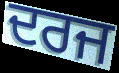
ਦਰਜ